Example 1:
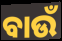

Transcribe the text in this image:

ବାଉଁ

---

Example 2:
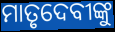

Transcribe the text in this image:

ମାତୃଦେବୀଙ୍କୁ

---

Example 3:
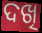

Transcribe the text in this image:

ଦଖି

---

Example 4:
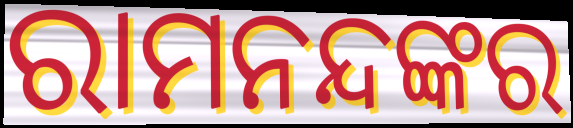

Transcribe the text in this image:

ରାମନନ୍ଦଙ୍କର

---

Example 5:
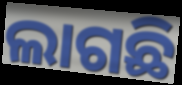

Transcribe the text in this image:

ଲାଗଛି